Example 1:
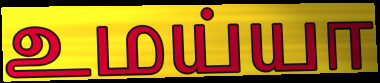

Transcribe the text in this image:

உமய்யா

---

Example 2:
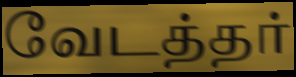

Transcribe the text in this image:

வேடத்தர்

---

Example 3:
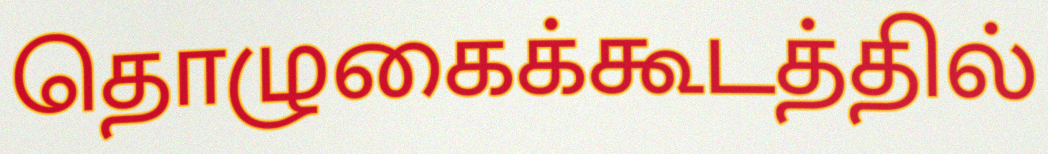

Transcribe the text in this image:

தொழுகைக்கூடத்தில்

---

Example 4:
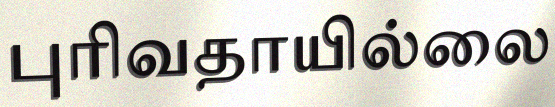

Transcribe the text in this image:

புரிவதாயில்லை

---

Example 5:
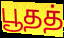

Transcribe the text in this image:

பூதத்